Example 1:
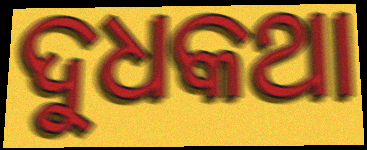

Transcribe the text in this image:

ଦୁଧକଥା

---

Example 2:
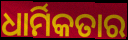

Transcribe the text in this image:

ଧାର୍ମିକତାର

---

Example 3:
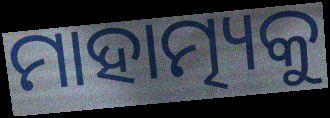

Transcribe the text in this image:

ମାହାତ୍ମ୍ୟକୁ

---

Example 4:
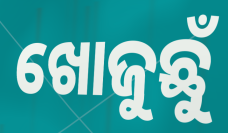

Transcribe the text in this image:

ଖୋଜୁଛୁଁ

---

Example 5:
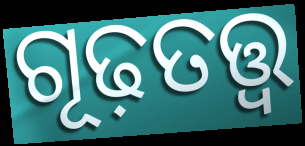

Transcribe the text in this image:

ଗୂଢ଼ତତ୍ତ୍ୱ